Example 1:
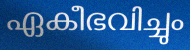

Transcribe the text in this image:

ഏകീഭവിച്ചും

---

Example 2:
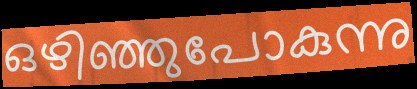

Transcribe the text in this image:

ഒഴിഞ്ഞുപോകുന്നു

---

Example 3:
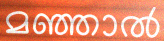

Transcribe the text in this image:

മഞ്ഞാൽ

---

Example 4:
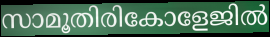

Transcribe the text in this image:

സാമൂതിരികോളേജിൽ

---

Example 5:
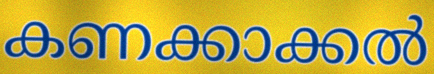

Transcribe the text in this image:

കണക്കാക്കൽ